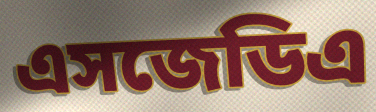
এসজেডিএ